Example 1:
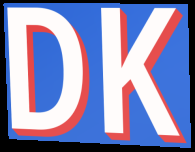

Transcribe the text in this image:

DK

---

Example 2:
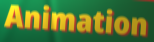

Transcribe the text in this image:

Animation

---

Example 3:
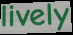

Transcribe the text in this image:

lively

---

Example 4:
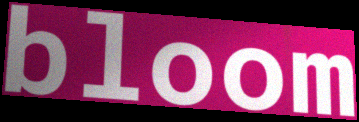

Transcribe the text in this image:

bloom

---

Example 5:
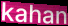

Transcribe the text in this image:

kahan